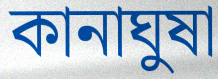
কানাঘুষা